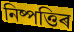
নিষ্পত্তিৰ